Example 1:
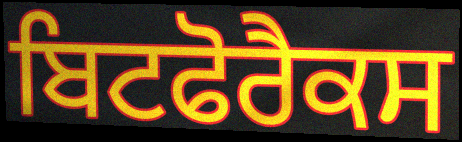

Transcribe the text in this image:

ਬਿਟਫੋਰੈਕਸ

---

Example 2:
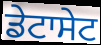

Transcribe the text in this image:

ਡੇਟਾਸੇਟ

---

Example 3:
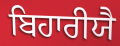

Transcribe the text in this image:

ਬਿਹਾਰੀਯੈ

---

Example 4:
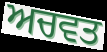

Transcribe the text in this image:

ਅਚਵਤ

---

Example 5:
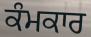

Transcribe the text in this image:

ਕੰਮਕਾਰ